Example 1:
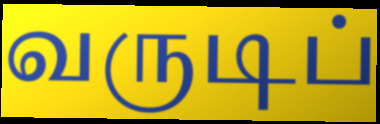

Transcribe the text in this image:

வருடிப்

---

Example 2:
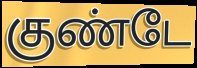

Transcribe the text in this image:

குண்டே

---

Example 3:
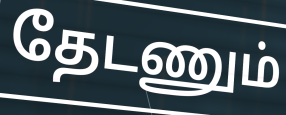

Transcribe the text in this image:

தேடணும்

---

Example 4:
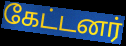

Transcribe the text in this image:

கேட்டனர்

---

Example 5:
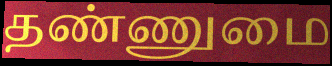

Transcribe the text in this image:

தண்ணுமை